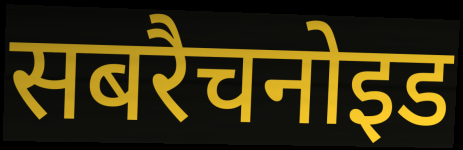
सबरैचनोइड